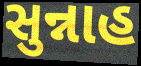
સુન્નાહ